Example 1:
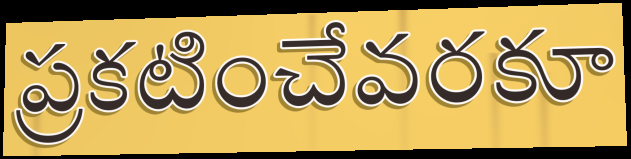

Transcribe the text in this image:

ప్రకటించేవరకూ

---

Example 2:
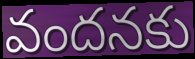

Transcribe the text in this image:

వందనకు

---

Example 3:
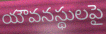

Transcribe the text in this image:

యౌవనస్థులపై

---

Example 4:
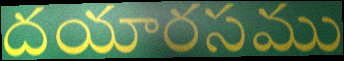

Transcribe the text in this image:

దయారసము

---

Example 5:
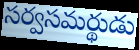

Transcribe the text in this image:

సర్వసమర్థుడు